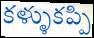
కళ్ళుకప్పి